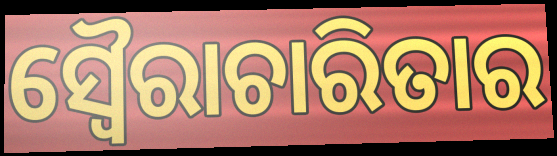
ସ୍ୱୈରାଚାରିତାର